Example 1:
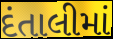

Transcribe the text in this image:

દંતાલીમાં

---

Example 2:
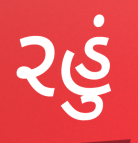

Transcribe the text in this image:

રહું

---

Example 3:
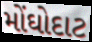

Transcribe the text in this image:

મોંઘોદાટ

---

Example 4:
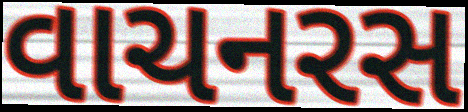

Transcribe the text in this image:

વાચનરસ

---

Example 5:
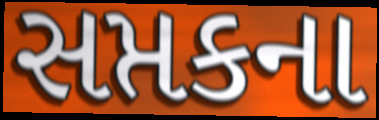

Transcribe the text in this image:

સપ્તકના